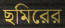
ছমিরের